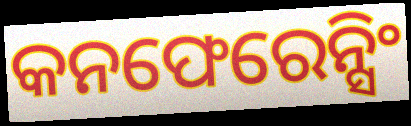
କନଫେରେନ୍ସିଂ